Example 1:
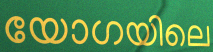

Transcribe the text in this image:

യോഗയിലെ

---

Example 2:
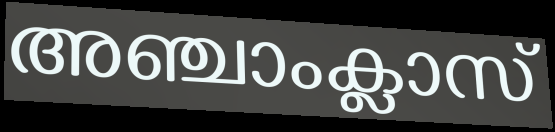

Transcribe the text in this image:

അഞ്ചാംക്ലാസ്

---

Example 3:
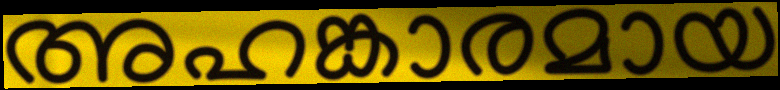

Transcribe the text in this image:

അഹങ്കാരമായ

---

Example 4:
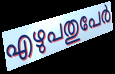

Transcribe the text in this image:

എഴുപതുപേർ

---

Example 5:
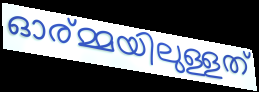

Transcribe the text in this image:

ഓര്മ്മയിലുള്ളത്